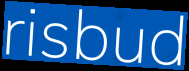
risbud